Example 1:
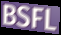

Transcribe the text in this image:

BSFL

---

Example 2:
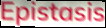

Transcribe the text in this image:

Epistasis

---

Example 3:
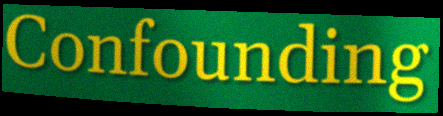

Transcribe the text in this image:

Confounding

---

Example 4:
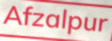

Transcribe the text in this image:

Afzalpur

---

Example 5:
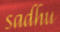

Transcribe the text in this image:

sadhu